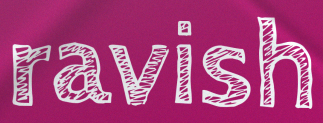
ravish